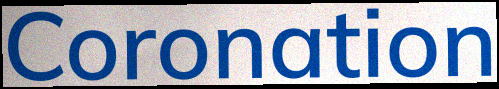
Coronation